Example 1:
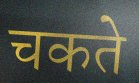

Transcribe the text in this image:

चकते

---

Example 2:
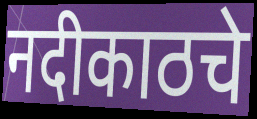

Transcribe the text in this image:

नदीकाठचे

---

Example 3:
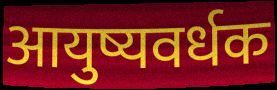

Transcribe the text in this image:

आयुष्यवर्धक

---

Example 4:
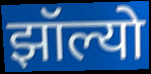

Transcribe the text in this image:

झॉल्यो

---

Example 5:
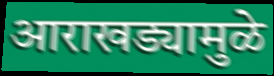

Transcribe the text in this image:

आराखड्यामुळे